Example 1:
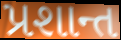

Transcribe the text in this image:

પ્રશાન્ત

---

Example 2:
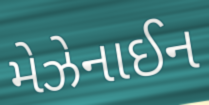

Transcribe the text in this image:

મેઝેનાઈન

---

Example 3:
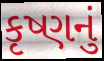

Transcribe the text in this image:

કૃષ્ણનું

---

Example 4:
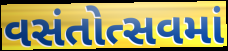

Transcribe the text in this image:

વસંતોત્સવમાં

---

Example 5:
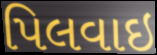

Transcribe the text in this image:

પિલવાઇ